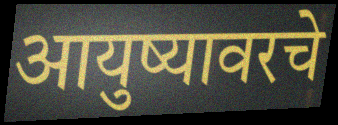
आयुष्यावरचे